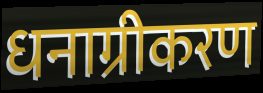
धनाग्रीकरण